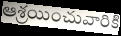
ఆశ్రయించువారికి